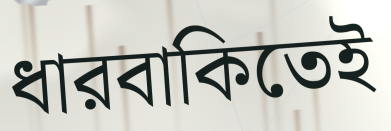
ধারবাকিতেই